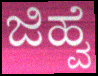
ಜಿಹ್ವೆ